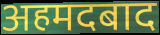
अहमदबाद